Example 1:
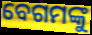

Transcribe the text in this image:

ବେଗମଙ୍କୁ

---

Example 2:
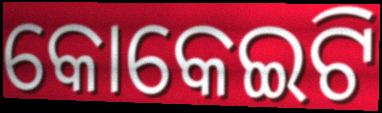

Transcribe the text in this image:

କୋକେଇଟି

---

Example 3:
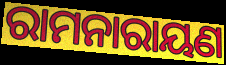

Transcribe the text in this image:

ରାମନାରାୟଣ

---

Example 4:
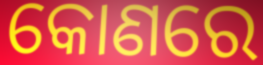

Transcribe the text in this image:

କୋଣରେ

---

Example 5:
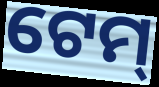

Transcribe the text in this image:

ଟେମ୍